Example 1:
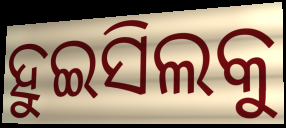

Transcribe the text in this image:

ହୁଇସିଲକୁ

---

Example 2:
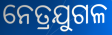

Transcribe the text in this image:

ନେତ୍ରଯୁଗଳ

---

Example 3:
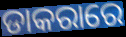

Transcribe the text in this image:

ଡାକରାରେ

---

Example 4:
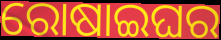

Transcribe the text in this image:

ରୋଷାଇଘର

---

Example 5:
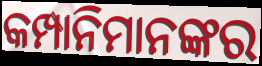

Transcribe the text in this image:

କମ୍ପାନିମାନଙ୍କର